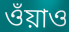
ওঁয়াও